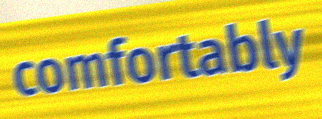
comfortably